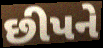
છીપને